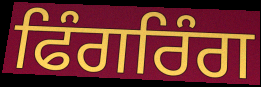
ਫਿੰਗਰਿੰਗ